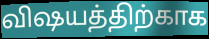
விஷயத்திற்காக